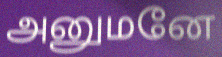
அனுமனே